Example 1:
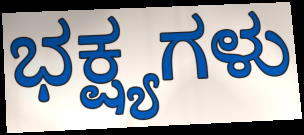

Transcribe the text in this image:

ಭಕ್ಷ್ಯಗಳು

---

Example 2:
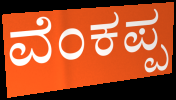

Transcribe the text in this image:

ವೆಂಕಪ್ಪ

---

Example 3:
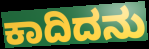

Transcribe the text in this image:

ಕಾದಿದನು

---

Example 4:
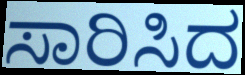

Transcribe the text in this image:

ಸಾರಿಸಿದ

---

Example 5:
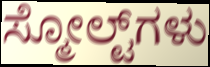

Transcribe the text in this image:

ಸ್ಮೋಲ್ಟ್‌ಗಳು